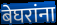
बेघरांना